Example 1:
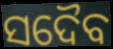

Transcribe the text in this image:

ସଦୈବ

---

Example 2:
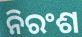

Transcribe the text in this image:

ନିରଂଶ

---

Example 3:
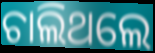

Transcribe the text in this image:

ଚାଲିଥଲେ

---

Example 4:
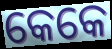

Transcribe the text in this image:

କେକେ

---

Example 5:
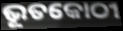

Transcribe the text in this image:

ଭୂତକୋଠୀ